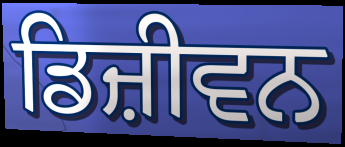
ਡਿਜ਼ੀਵਨ